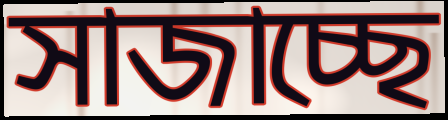
সাজাচ্ছে